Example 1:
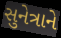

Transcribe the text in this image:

સુનેત્રાને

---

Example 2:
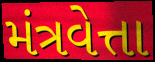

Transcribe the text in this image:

મંત્રવેત્તા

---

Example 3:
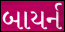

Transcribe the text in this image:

બાયર્ન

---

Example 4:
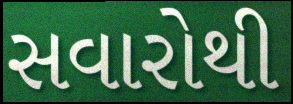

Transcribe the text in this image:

સવારોથી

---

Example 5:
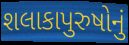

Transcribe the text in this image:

શલાકાપુરુષોનું